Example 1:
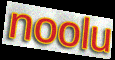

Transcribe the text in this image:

noolu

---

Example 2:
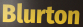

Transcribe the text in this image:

Blurton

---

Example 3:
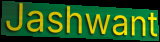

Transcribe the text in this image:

Jashwant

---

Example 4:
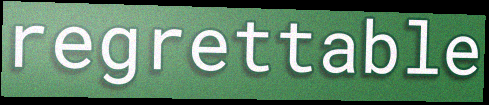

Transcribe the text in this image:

regrettable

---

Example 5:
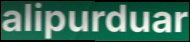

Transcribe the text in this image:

alipurduar